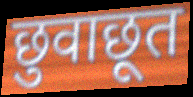
छुवाछूत